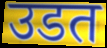
उडत